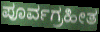
ಪೂರ್ವಗ್ರಹೀತ